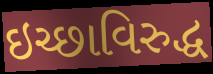
ઇચ્છાવિરુદ્ધ